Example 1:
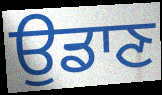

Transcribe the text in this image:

ਉਡਾਣ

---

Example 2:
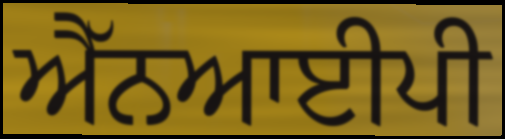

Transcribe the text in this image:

ਐੱਨਆਈਪੀ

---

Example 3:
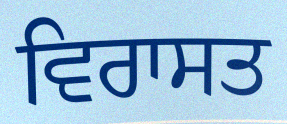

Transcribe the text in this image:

ਵਿਰਾਸਤ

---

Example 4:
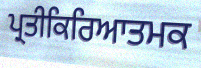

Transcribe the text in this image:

ਪ੍ਰਤੀਕਿਰਿਆਤਮਕ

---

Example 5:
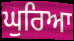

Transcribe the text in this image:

ਘੁਰਿਆ